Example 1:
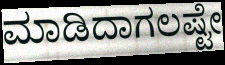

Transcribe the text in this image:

ಮಾಡಿದಾಗಲಷ್ಟೇ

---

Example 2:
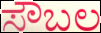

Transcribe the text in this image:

ಸೌಬಲ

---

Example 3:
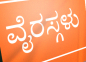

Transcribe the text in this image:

ವೈರಸ್ಗಳು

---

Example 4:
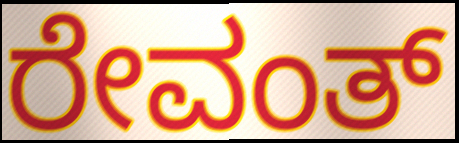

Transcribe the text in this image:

ರೇವಂತ್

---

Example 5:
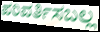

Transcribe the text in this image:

ಪರಿವರ್ತಿಸಬಲ್ಲ